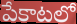
పేకాటలో